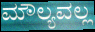
ಮೌಲ್ಯವಲ್ಲ